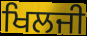
ਖਿਲਜੀ